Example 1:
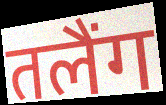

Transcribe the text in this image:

तलैंग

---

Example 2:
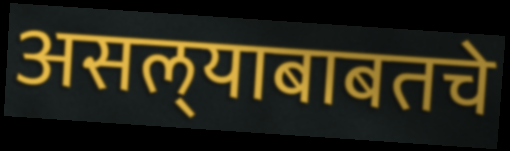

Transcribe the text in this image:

असल्याबाबतचे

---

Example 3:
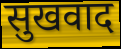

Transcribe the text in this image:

सुखवाद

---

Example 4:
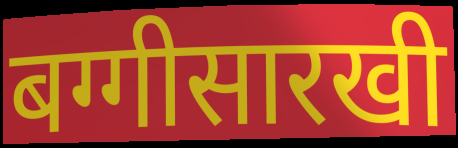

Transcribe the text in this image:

बग्गीसारखी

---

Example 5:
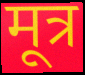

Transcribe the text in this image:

मूत्र